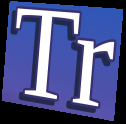
Tr